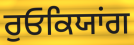
ਰੁਓਕਿਯਾਂਗ